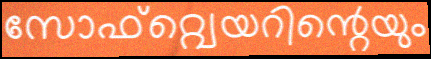
സോഫ്റ്റ്വെയറിന്റെയും